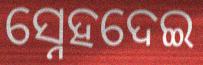
ସ୍ନେହଦେଇ